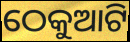
ଠେକୁଆଟି